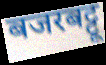
बजरबट्टू